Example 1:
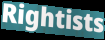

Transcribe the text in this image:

Rightists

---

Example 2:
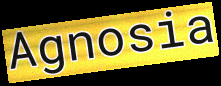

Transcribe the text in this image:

Agnosia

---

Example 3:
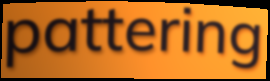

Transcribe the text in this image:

pattering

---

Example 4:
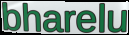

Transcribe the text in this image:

bharelu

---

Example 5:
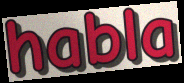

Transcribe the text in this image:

habla